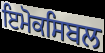
ਇਮੋਕਸਿਬਲ